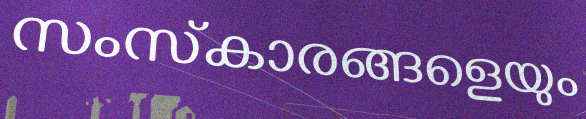
സംസ്‌കാരങ്ങളെയും